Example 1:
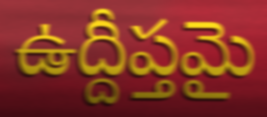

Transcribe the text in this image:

ఉద్దీప్తమై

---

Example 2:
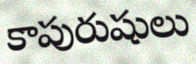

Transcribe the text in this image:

కాపురుషులు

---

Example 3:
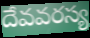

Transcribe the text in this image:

దేవవరస్య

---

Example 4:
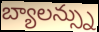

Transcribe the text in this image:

బ్యాలన్స్ను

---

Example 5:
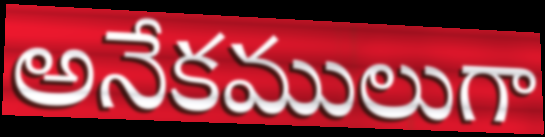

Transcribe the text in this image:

అనేకములుగా